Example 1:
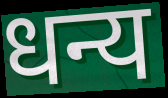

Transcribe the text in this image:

धन्य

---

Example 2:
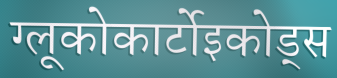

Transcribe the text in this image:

ग्लूकोकार्टोइकोड्स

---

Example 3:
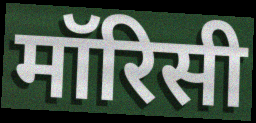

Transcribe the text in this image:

मॉरिसी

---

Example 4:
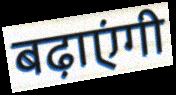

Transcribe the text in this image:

बढ़ाएंगी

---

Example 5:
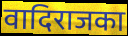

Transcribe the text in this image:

वादिराजका